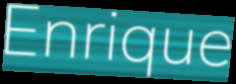
Enrique